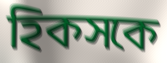
হিকসকে